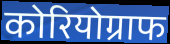
कोरियोग्राफ